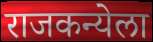
राजकन्येला